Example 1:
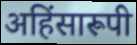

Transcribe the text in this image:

अहिंसारूपी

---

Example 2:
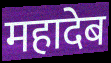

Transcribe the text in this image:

महादेब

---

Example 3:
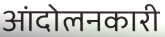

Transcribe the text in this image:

आंदोलनकारी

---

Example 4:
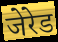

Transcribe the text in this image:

जेरेड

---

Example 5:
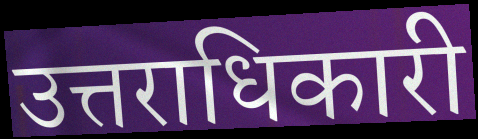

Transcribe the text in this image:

उत्तराधिकारी